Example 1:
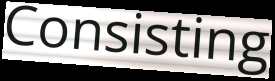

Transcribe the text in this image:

Consisting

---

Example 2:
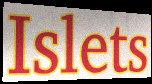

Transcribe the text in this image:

Islets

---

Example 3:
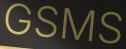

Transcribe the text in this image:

GSMS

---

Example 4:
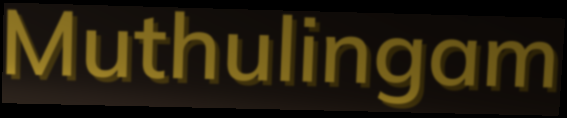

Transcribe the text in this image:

Muthulingam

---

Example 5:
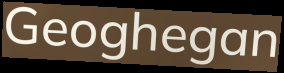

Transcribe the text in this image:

Geoghegan